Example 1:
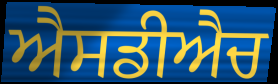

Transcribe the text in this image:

ਐਸਡੀਐਚ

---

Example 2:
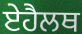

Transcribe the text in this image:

ਏਹੈਲਥ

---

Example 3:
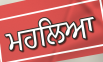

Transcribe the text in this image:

ਮਹਲਿਆ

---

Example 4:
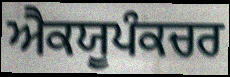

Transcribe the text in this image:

ਐਕਯੂਪੰਕਚਰ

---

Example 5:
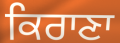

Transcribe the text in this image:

ਕਿਰਾਣਾ